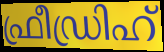
ഫ്രീഡ്രിഹ്